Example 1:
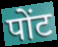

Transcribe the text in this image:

पोंट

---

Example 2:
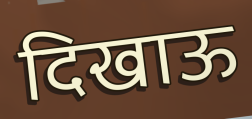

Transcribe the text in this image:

दिखाऊ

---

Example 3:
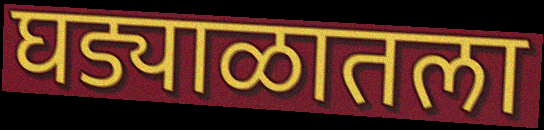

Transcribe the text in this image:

घड्याळातला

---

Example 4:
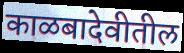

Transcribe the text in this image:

काळबादेवीतील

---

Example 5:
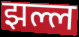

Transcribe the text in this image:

झल्ल